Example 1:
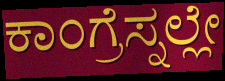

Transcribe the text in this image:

ಕಾಂಗ್ರೆಸ್ನಲ್ಲೇ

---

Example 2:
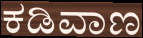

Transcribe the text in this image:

ಕಡಿವಾಣ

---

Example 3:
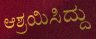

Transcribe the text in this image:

ಆಶ್ರಯಿಸಿದ್ದು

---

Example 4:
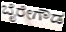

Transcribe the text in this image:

ಬೈರೇಗೌಡ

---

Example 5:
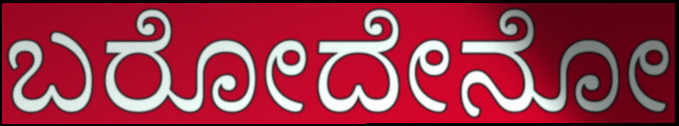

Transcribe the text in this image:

ಬರೋದೇನೋ